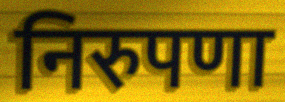
निरुपणा